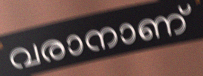
വരാനാണ്